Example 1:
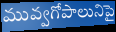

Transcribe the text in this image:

మువ్వగోపాలునిపై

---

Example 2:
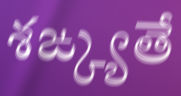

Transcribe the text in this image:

శఙ్క్యతే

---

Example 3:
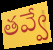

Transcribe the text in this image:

తవ్వే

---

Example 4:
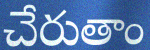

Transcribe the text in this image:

చేరుతాం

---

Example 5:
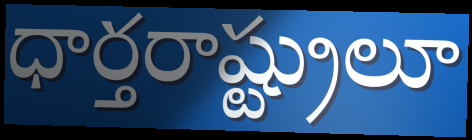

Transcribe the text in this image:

ధార్తరాష్ట్రులూ